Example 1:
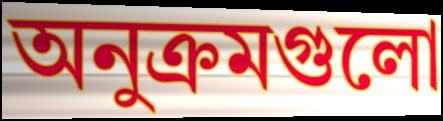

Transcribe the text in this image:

অনুক্রমগুলো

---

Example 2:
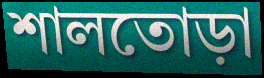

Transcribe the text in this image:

শালতোড়া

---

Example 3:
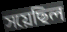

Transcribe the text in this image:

সয়েছিল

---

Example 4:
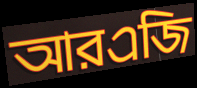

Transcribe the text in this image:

আরএজি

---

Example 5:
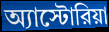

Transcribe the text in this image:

অ্যাস্টোরিয়া